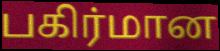
பகிர்மான